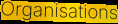
Organisations